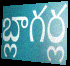
బ్లాగర్ల